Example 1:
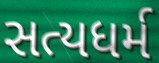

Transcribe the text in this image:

સત્યધર્મ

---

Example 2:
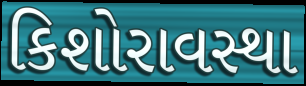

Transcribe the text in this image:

કિશોરાવસ્થા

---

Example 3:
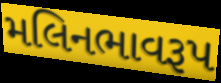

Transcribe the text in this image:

મલિનભાવરૂપ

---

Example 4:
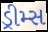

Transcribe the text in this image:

ડ્રીમ્સ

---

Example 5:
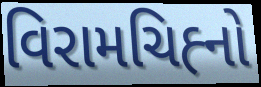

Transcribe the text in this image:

વિરામચિહ્‍નો